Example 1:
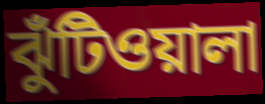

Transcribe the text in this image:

ঝুঁটিওয়ালা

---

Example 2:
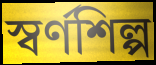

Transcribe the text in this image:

স্বর্ণশিল্প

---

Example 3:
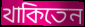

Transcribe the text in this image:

থাকিতেন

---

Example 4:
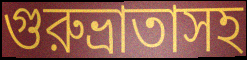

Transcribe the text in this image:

গুরুভ্রাতাসহ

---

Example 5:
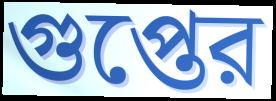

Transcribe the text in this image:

গুপ্তের